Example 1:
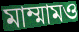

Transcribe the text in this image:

মাম্মামও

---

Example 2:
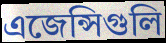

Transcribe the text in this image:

এজেন্সিগুলি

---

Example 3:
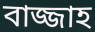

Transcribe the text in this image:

বাজ্জাহ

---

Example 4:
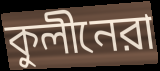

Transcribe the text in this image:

কুলীনেরা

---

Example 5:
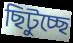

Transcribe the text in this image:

ছিটুচ্ছে